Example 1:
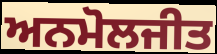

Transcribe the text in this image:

ਅਨਮੋਲਜੀਤ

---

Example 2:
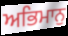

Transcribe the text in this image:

ਅਭਿਮਾਨੁ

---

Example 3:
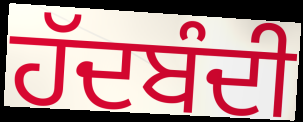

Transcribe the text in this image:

ਹੱਦਬੰਦੀ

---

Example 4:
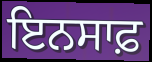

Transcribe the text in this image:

ਇਨਸਾਫ਼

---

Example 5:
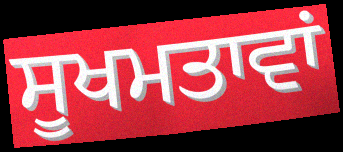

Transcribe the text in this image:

ਸੂਖਮਤਾਵਾਂ